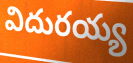
విదురయ్య